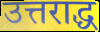
उत्तराद्ध